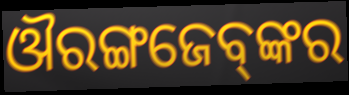
ଔରଙ୍ଗଜେବ୍‌ଙ୍କର